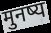
मुनष्य